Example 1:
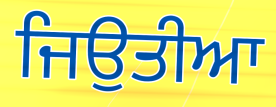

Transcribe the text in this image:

ਜਿਉਤੀਆ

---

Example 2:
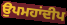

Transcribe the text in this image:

ਉਪਮਹਾਂਦੀਪ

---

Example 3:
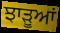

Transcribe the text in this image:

ਝਾੜੂਆਂ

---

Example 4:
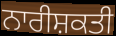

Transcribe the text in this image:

ਨਾਰੀਸ਼ਕਤੀ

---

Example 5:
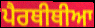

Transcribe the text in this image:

ਪੈਰਥੀਥੀਆ